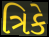
ત્રિકે